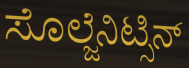
ಸೊಲ್ಜೆನಿಟ್ಸಿನ್